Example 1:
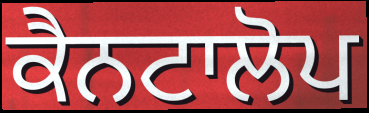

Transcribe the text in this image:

ਕੈਨਟਾਲੋਪ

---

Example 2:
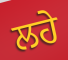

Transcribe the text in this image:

ਲਹੇ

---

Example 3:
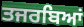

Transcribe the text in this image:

ਤਜਰਬਿਆਂ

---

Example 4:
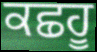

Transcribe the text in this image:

ਕਛਹੂ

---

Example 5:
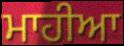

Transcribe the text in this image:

ਮਾਹੀਆ